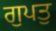
ਗੁਪਤੁ